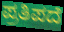
ಪ್ರತಿಪದೆ